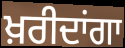
ਖ਼ਰੀਦਾਂਗਾ